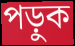
পড়ুক